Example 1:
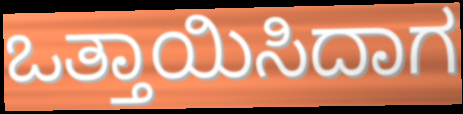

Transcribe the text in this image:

ಒತ್ತಾಯಿಸಿದಾಗ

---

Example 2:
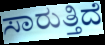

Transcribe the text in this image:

ಸಾರುತ್ತಿದೆ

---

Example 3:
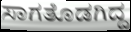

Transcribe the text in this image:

ಸಾಗತೊಡಗಿದ್ದ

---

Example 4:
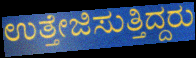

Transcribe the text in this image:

ಉತ್ತೇಜಿಸುತ್ತಿದ್ದರು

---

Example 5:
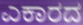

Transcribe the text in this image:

ಎಕಾರದ